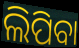
ଲିପିବା